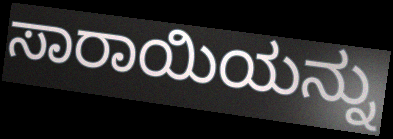
ಸಾರಾಯಿಯನ್ನು